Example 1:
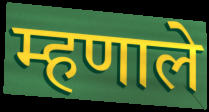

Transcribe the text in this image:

म्हणाले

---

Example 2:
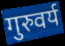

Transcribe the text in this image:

गुरुवर्य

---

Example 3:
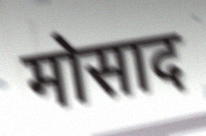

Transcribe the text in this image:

मोसाद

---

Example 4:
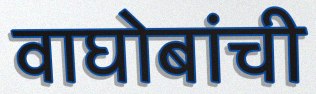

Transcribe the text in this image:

वाघोबांची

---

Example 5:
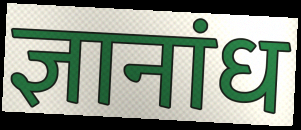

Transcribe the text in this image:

ज्ञानांध